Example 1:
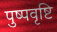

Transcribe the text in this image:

पुष्पवृष्टि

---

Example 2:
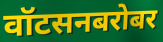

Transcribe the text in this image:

वॉटसनबरोबर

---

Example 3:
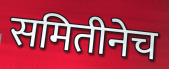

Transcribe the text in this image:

समितीनेच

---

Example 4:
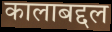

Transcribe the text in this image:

कालाबद्दल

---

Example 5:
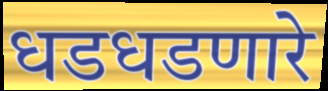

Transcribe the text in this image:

धडधडणारे